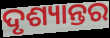
ଦୃଶ୍ୟାନ୍ତର